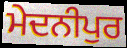
ਮੇਦਨੀਪੁਰ